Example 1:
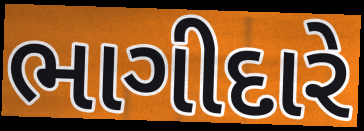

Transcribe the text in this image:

ભાગીદારે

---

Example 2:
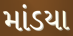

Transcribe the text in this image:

માંડયા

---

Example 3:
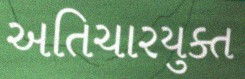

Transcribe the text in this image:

અતિચારયુક્ત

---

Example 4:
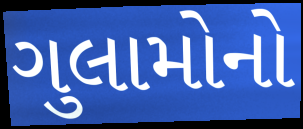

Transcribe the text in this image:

ગુલામોનો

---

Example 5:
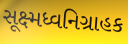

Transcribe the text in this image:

સૂક્ષ્મધ્વનિગ્રાહક